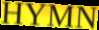
HYMN